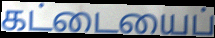
கட்டையைப்